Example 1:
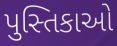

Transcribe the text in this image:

પુસ્તિકાઓ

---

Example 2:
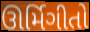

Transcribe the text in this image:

ઊર્મિગીતો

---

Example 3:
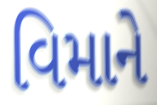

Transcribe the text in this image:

વિમાને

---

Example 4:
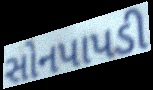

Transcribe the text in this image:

સોનપાપડી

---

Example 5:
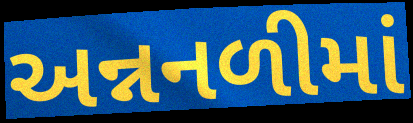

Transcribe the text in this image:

અન્નનળીમાં